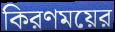
কিরণময়ের